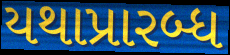
યથાપ્રારબ્ધ